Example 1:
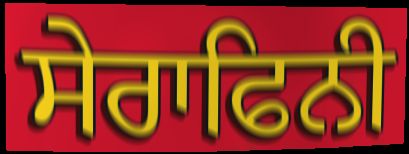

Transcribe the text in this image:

ਸੇਰਾਫਿਨੀ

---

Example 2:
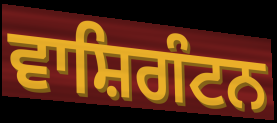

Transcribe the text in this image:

ਵਾਸ਼ਿਗੰਟਨ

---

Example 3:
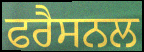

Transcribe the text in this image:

ਫਰੈਸਨਲ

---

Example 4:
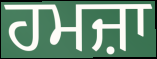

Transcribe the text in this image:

ਹਮਜ਼ਾ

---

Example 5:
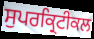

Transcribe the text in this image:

ਸੁਪਰਕ੍ਰਿਟੀਕਲ